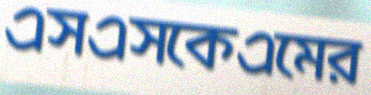
এসএসকেএমের